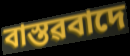
বাস্তৱবাদে